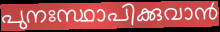
പുനഃസ്ഥാപിക്കുവാൻ